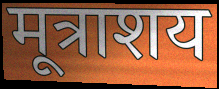
मूत्राशय